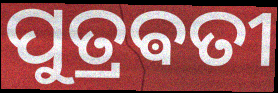
ପୁତ୍ରଵତୀ